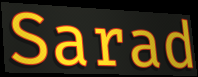
Sarad